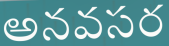
అనవసర